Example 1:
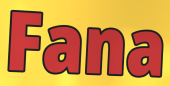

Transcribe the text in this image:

Fana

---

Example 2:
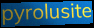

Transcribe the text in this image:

pyrolusite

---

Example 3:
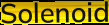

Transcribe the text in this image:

Solenoid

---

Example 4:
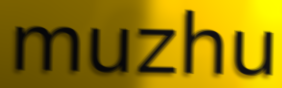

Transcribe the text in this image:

muzhu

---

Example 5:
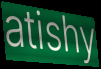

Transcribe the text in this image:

atishy